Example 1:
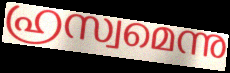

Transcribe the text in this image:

ഹ്രസ്വമെന്നു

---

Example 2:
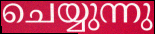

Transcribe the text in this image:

ചെയ്യുന്നു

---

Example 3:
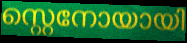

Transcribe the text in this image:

സ്റ്റെനോയായി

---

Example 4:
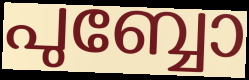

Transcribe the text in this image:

പുബ്ബോ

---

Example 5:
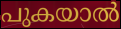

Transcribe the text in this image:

പുകയാൽ